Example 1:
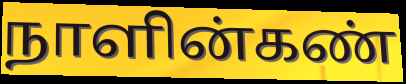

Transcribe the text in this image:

நாளின்கண்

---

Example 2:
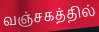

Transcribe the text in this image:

வஞ்சகத்தில்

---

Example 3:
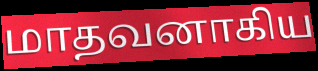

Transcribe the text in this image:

மாதவனாகிய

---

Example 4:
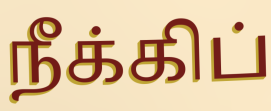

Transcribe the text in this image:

நீக்கிப்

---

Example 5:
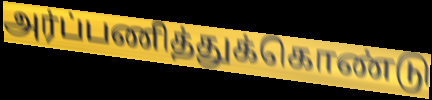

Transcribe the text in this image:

அர்ப்பணித்துக்கொண்டு